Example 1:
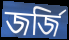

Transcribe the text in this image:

জর্জি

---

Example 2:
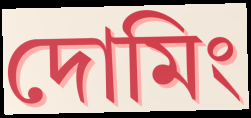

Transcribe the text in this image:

দোমিং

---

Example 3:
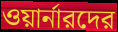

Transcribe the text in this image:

ওয়ার্নারদের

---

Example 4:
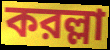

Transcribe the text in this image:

করল্লা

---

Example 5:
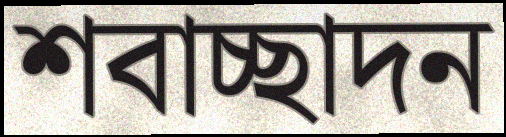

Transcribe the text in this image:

শবাচ্ছাদন